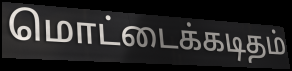
மொட்டைக்கடிதம்